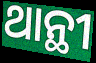
ଥାନ୍ଥୀ